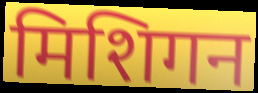
मिशिगन